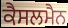
ਕੈਸਲਮੈਨ